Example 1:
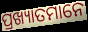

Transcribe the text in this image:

ପ୍ରଖ୍ୟାତମାନେ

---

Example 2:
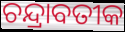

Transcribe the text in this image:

ଚନ୍ଦ୍ରାବତୀକ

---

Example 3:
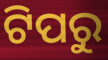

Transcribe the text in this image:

ଟିପରୁ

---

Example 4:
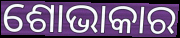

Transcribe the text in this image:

ଶୋଭାକାର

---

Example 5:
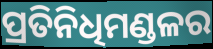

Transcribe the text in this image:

ପ୍ରତିନିଧିମଣ୍ଡଳର